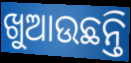
ଖୁଆଉଛନ୍ତି